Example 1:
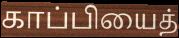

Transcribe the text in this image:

காப்பியைத்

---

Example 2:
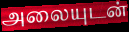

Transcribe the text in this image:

அலையுடன்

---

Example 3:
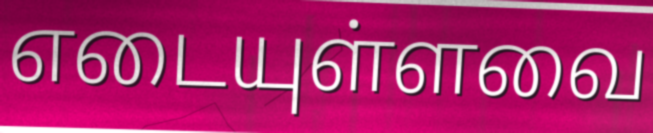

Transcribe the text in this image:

எடையுள்ளவை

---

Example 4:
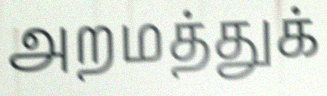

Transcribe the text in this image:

அறமத்துக்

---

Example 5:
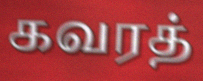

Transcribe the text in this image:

கவரத்